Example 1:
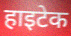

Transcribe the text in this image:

हाइटेक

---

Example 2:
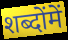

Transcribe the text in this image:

शब्दोंमें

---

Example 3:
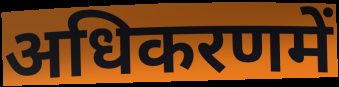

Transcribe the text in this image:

अधिकरणमें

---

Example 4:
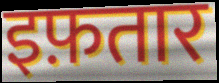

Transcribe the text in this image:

इफ़तार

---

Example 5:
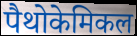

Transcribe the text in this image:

पैथोकेमिकल